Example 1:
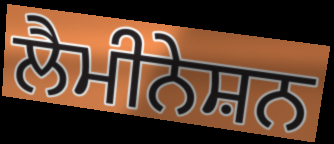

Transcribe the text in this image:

ਲੈਮੀਨੇਸ਼ਨ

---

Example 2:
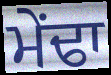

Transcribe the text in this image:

ਮੇਂਢਾ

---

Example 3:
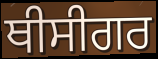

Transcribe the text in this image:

ਥੀਸੀਗਰ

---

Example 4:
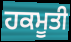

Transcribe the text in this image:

ਹਕਮੂਤੀ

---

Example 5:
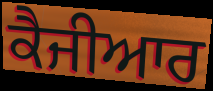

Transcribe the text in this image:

ਕੈਜੀਆਰ